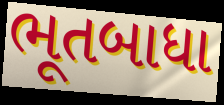
ભૂતબાધા